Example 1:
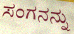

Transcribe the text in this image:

ಸಂಗನನ್ನು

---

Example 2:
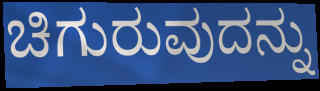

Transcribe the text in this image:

ಚಿಗುರುವುದನ್ನು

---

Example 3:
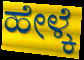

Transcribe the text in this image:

ಹೇಳ್ಕೆ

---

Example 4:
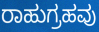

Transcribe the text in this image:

ರಾಹುಗ್ರಹವು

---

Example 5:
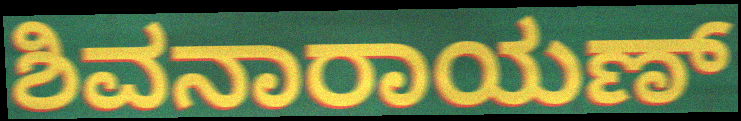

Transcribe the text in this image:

ಶಿವನಾರಾಯಣ್